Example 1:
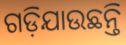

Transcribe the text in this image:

ଗଡ଼ିଯାଉଛନ୍ତି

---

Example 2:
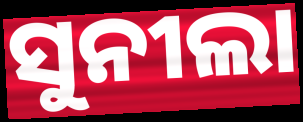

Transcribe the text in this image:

ସୁନୀଲା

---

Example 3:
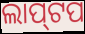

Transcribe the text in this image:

ଲାପ୍‌ଟପ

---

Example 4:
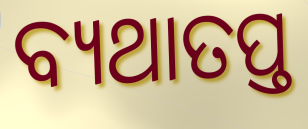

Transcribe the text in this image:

ବ୍ୟଥାତପ୍ତ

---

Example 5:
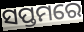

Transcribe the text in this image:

ସପ୍ତମରେ